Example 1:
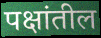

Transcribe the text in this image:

पक्षांतील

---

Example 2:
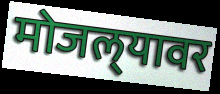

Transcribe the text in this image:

मोजल्यावर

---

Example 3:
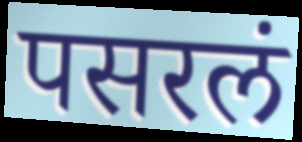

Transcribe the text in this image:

पसरलं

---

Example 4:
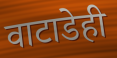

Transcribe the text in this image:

वाटाडेही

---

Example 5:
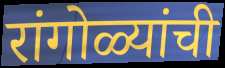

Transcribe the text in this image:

रांगोळ्यांची